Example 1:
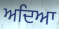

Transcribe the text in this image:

ਅਦਿਆ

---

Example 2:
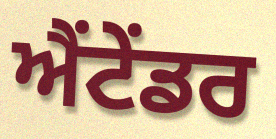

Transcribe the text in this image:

ਐਂਟੇਂਡਰ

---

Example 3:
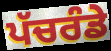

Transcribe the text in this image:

ਪੱਚਰੰਡੇ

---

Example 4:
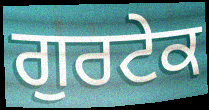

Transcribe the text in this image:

ਗੁਰਟੇਕ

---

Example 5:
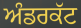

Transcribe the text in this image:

ਅੰਡਰਕੱਟ